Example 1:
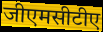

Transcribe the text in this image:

जीएमसीटीए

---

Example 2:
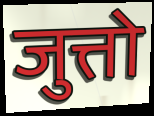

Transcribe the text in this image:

जुत्तो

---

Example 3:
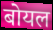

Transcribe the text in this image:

बोयल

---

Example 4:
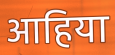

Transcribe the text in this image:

आहिया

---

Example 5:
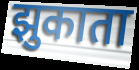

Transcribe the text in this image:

झुकाता